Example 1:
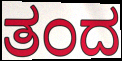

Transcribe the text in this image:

ತಂದ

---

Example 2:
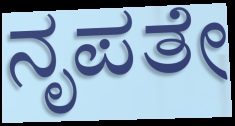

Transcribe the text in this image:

ನೃಪತೇ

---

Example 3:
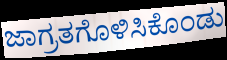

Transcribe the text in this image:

ಜಾಗ್ರತಗೊಳಿಸಿಕೊಂಡು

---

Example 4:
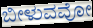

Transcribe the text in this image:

ಬೀಳುವವೋ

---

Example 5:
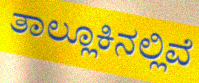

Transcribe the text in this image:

ತಾಲ್ಲೂಕಿನಲ್ಲಿವೆ